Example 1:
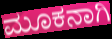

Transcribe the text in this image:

ಮೂಕನಾಗಿ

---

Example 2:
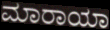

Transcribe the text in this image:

ಮಾರಾಯಾ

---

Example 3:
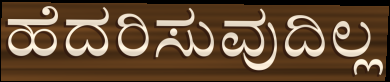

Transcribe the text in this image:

ಹೆದರಿಸುವುದಿಲ್ಲ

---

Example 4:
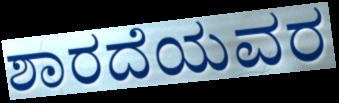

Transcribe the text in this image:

ಶಾರದೆಯವರ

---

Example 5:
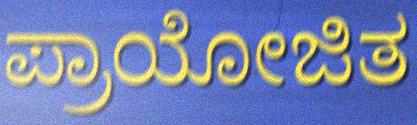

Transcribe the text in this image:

ಪ್ರಾಯೋಜಿತ